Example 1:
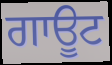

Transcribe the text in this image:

ਗਾਊਟ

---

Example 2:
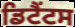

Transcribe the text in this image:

ਡਿਟੈਂਟਸ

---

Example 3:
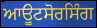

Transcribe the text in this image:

ਆਊਟਸੋਰਸਿੰਗ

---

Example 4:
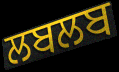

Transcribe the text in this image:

ਲਬਲਬ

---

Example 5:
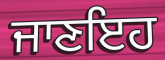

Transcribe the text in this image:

ਜਾਣਇਹ